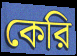
কেরি